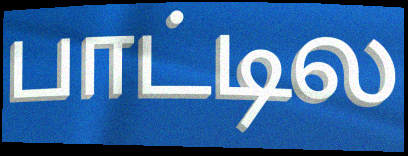
பாட்டில